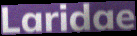
Laridae